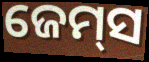
ଜେମ୍‍ସ